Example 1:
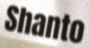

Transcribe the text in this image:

Shanto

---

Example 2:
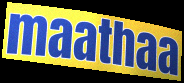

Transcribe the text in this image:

maathaa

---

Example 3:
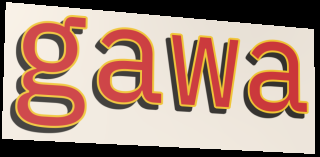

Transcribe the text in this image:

gawa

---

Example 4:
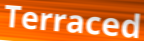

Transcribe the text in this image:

Terraced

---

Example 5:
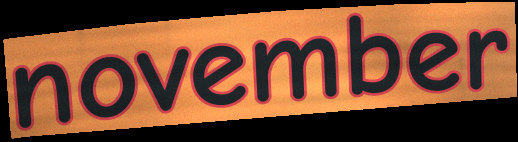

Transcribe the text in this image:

november